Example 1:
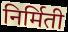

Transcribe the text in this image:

निर्मिती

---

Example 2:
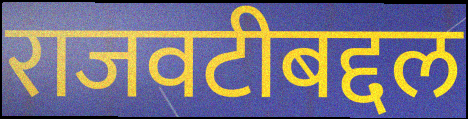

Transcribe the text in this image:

राजवटीबद्दल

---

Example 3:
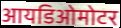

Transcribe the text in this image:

आयडिओमोटर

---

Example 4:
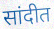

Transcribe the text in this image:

सांदीत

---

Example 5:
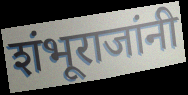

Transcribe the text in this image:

शंभूराजांनी